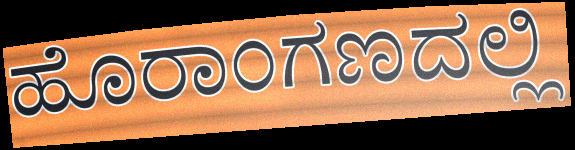
ಹೊರಾಂಗಣದಲ್ಲಿ